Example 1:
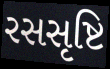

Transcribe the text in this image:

રસસૃષ્ટિ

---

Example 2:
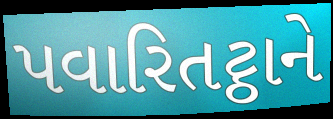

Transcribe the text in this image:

પવારિતટ્ઠાને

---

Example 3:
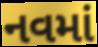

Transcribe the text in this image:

નવમાં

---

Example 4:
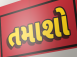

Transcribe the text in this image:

તમાશો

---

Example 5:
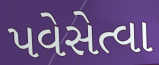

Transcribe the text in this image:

પવેસેત્વા